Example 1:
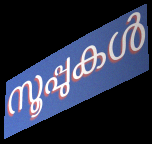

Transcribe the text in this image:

സൂപ്പുകൾ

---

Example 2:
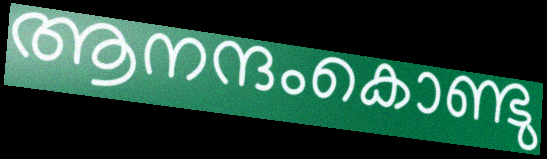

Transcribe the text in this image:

ആനന്ദംകൊണ്ടു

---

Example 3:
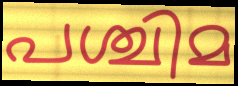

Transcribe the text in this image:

പശ്ചിമ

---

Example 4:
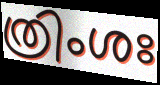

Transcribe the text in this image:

ത്രിംശഃ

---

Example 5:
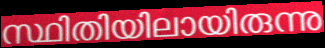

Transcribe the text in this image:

സ്ഥിതിയിലായിരുന്നു